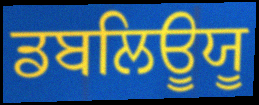
ਡਬਲਿਊਯੂ